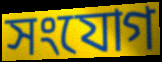
সংযোগ